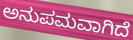
ಅನುಪಮವಾಗಿದೆ